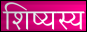
शिष्यस्य